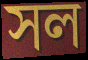
সল